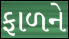
ફાળને